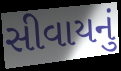
સીવાયનું